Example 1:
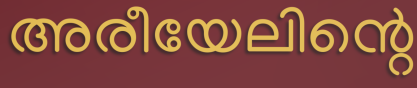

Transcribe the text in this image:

അരീയേലിന്റെ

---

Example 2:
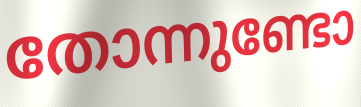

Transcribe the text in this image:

തോന്നുണ്ടോ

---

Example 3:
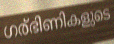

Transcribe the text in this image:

ഗര്ഭിണികളുടെ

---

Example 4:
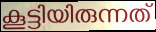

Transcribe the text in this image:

കൂട്ടിയിരുന്നത്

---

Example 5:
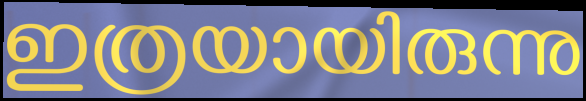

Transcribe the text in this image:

ഇത്രയായിരുന്നു